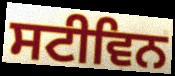
ਸਟੀਵਿਨ